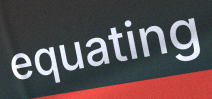
equating